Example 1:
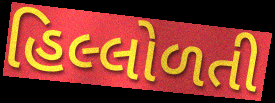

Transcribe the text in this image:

હિલ્લોળતી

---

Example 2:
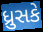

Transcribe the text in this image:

ધ્રુસકે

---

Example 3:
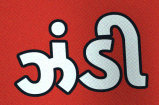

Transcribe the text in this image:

ઝંડી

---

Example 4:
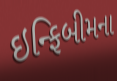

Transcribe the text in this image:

ઇન્ફિબીમના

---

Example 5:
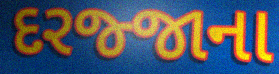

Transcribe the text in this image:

દરજ્જાના